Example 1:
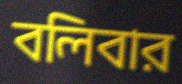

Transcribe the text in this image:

বলিবার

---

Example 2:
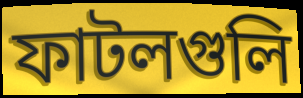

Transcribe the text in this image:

ফাটলগুলি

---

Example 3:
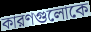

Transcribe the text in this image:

কারণগুলোকে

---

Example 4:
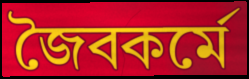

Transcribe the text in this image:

জৈবকর্মে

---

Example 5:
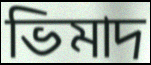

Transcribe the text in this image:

ভিমাদ